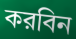
করবিন